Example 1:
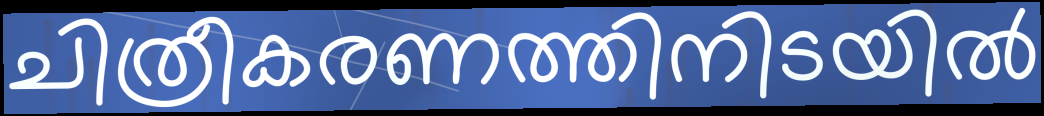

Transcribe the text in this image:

ചിത്രീകരണത്തിനിടയിൽ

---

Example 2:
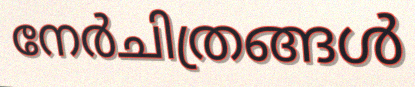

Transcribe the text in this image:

നേർചിത്രങ്ങൾ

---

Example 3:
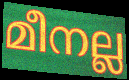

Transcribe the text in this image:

മീനല്ല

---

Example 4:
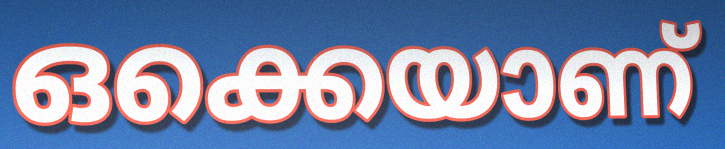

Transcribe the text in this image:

ഒക്കെയാണ്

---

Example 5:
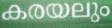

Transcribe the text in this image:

കരയലും